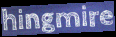
hingmire